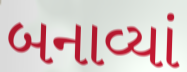
બનાવ્યાં